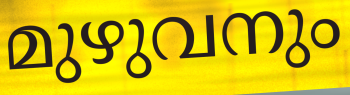
മുഴുവനും